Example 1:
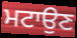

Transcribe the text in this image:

ਮਟਾਉਣ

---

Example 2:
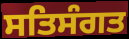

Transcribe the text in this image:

ਸਤਿਸੰਗਤ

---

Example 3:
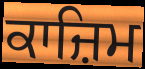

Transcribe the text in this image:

ਕਾਜ਼ਿਮ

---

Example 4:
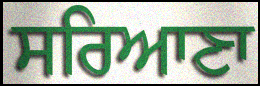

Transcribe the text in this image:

ਸਰਿਆਣਾ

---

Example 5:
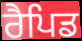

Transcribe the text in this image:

ਰੈਪਿਡ